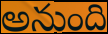
అనుంది